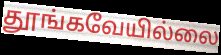
தூங்கவேயில்லை